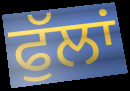
ਫੁੱਲਾਂ